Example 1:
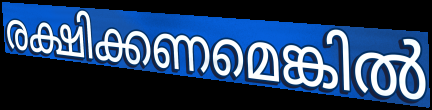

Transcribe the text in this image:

രക്ഷിക്കണമെങ്കിൽ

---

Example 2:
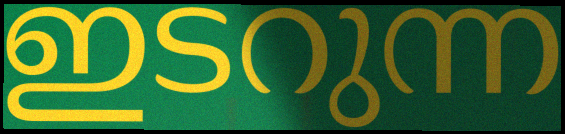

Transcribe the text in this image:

ഇടറുന്ന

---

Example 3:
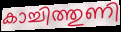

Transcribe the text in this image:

കാച്ചിത്തുണി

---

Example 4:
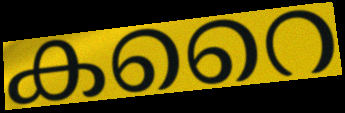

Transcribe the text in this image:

കറൈ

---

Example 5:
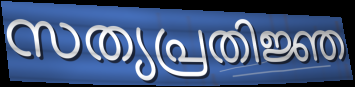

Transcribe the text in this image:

സത്യപ്രതിജ്ഞ